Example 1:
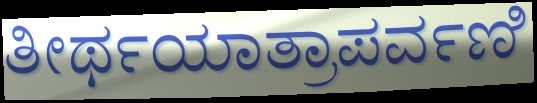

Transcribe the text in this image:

ತೀರ್ಥಯಾತ್ರಾಪರ್ವಣಿ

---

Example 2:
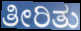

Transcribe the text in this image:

ತೀರಿತು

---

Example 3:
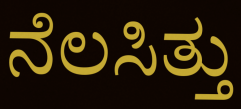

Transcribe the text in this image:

ನೆಲಸಿತ್ತು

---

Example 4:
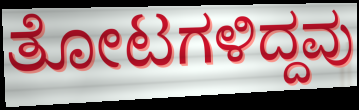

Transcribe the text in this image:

ತೋಟಗಳಿದ್ದವು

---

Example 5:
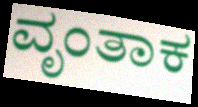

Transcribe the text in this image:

ವೃಂತಾಕ